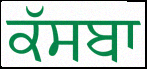
ਕੱਸਬਾ